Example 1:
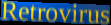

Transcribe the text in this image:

Retrovirus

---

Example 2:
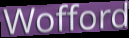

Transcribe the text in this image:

Wofford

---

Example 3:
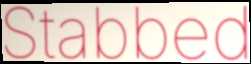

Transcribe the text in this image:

Stabbed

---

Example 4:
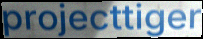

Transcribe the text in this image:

projecttiger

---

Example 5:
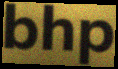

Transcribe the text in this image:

bhp